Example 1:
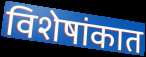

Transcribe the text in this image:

विशेषांकात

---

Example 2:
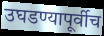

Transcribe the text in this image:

उघडण्यापूर्वीच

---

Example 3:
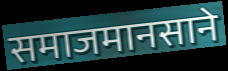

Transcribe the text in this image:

समाजमानसाने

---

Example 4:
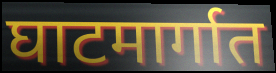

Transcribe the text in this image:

घाटमार्गात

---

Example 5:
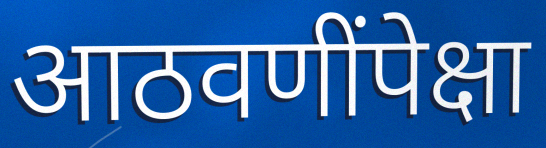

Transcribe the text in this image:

आठवणींपेक्षा